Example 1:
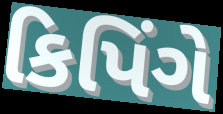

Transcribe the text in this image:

કિપિંગે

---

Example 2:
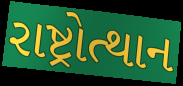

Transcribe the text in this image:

રાષ્ટ્રોત્થાન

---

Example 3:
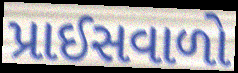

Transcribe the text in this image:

પ્રાઈસવાળો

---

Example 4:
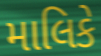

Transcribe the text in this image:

માલિકે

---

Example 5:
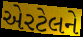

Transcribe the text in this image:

એરટેલને